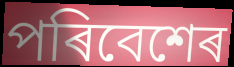
পৰিবেশেৰ